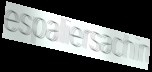
espaliersachin